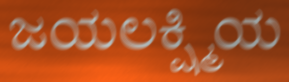
ಜಯಲಕ್ಷ್ಮಿಯ